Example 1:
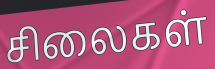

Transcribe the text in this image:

சிலைகள்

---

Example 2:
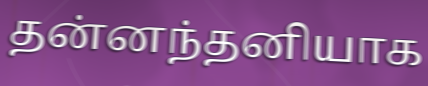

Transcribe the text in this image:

தன்னந்தனியாக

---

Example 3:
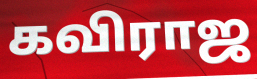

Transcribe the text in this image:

கவிராஜ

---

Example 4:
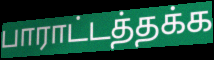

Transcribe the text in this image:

பாராட்டத்தக்க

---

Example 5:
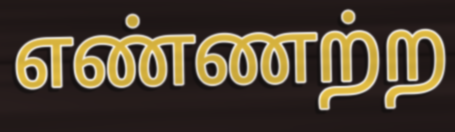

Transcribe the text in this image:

எண்ணற்ற